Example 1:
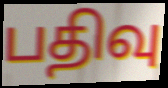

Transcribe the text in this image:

பதிவு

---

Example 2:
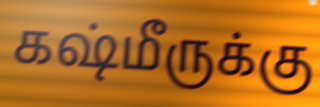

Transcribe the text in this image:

கஷ்மீருக்கு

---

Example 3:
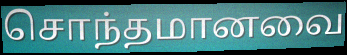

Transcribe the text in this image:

சொந்தமானவை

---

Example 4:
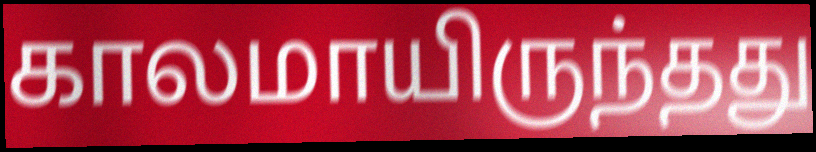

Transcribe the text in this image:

காலமாயிருந்தது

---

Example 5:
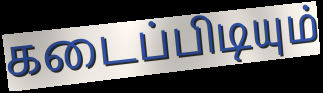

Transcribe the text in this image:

கடைப்பிடியும்